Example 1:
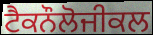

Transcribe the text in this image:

ਟੈਕਨੌਲੋਜੀਕਲ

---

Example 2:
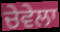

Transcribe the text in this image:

ਚੇਵੇਲਾ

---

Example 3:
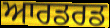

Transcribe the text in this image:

ਆਰਡਰਡ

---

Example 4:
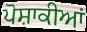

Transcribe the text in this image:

ਪੋਸ਼ਾਕੀਆਂ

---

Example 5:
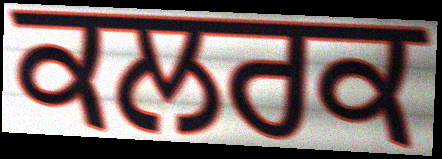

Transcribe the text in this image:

ਕਲਰਕ